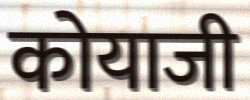
कोयाजी